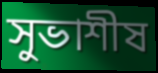
সুভাশীষ